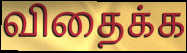
விதைக்க